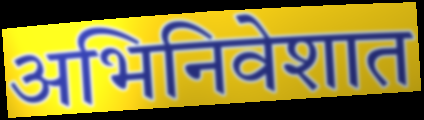
अभिनिवेशात